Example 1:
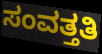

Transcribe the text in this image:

ಸಂವತ್ತತಿ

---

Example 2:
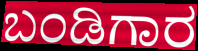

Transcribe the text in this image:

ಬಂಡಿಗಾರ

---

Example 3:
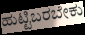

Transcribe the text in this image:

ಹುಟ್ಟಿಬರಬೇಕು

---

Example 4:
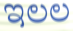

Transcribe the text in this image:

ಇಲಲ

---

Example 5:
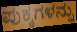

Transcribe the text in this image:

ಪುಕ್ಕಗಳನ್ನು